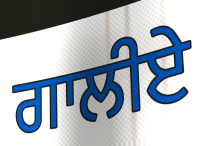
ਗਾਲੀਏ